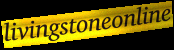
livingstoneonline